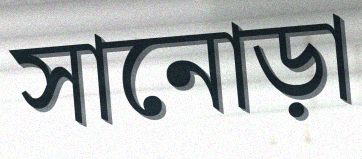
সানোড়া